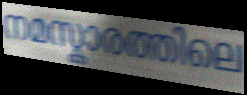
നമസ്കാരത്തിലെ